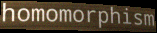
homomorphism